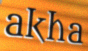
akha